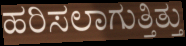
ಹರಿಸಲಾಗುತ್ತಿತ್ತು